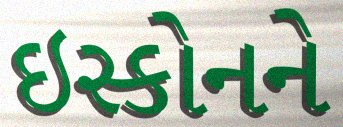
ઇસ્કોનને